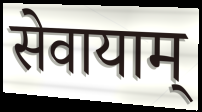
सेवायाम्